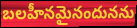
బలహీనమైనందునను